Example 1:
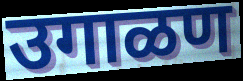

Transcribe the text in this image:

उगाळण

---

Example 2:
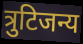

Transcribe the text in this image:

त्रुटिजन्य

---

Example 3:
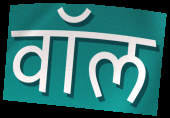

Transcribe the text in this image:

वॉल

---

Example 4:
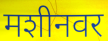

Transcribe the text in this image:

मशीनवर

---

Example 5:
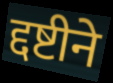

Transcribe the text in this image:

द्दष्टीने